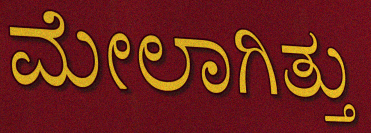
ಮೇಲಾಗಿತ್ತು